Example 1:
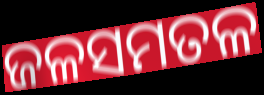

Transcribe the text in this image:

ଜଳସମତଳ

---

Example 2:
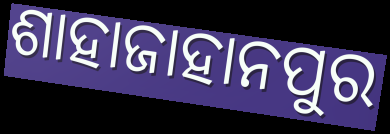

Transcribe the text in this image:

ଶାହାଜାହାନପୁର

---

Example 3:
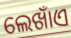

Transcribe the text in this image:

ଲେଖାଁଏ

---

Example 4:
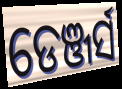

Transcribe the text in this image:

ଡେଞ୍ଜର୍ସ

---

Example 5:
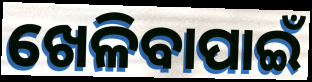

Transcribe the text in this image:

ଖେଳିବାପାଇଁ